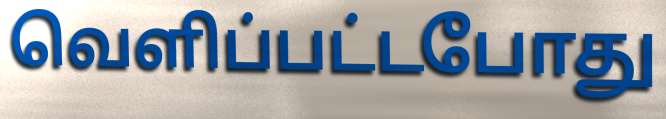
வெளிப்பட்டபோது